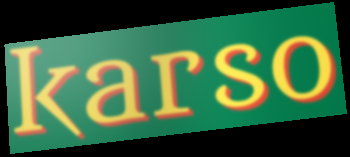
karso